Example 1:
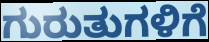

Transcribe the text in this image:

ಗುರುತುಗಳಿಗೆ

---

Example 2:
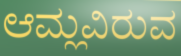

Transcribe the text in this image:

ಆಮ್ಲವಿರುವ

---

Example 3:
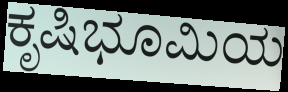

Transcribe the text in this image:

ಕೃಷಿಭೂಮಿಯ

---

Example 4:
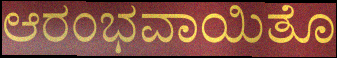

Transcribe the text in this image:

ಆರಂಭವಾಯಿತೊ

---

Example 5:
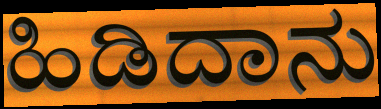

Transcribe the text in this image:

ಹಿಡಿದಾನು